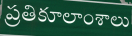
ప్రతికూలాంశాలు